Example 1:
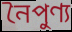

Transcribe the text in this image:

নৈপুণ্য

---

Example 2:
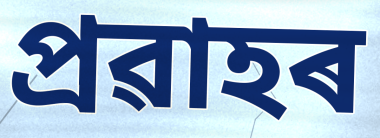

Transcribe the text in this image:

প্ৰৱাহৰ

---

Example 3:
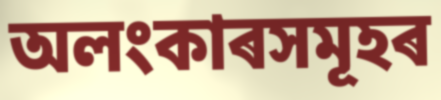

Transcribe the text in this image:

অলংকাৰসমূহৰ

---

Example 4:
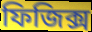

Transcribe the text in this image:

ফিজিক্স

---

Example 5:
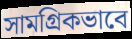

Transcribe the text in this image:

সামগ্ৰিকভাবে